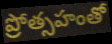
ప్రోత్సహంతో